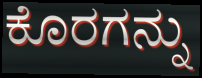
ಕೊರಗನ್ನು